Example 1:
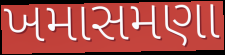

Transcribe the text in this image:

ખમાસમણા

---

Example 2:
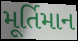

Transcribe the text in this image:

મૂર્તિમાન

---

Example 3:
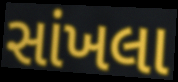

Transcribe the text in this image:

સાંખલા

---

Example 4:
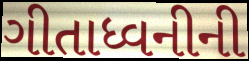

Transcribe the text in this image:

ગીતાધ્વનીની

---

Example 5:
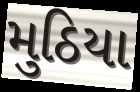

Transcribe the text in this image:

મુઠિયા